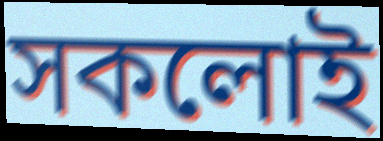
সকলোই